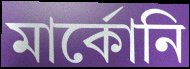
মার্কোনি